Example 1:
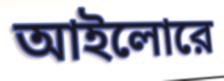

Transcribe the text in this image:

আইলোরে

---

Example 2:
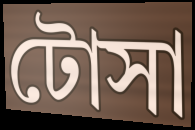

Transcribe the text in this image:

টোসা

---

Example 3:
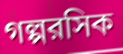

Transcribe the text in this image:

গল্পরসিক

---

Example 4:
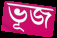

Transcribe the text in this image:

ভূজ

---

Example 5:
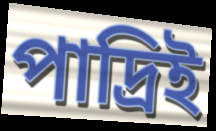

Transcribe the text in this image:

পাদ্রিই